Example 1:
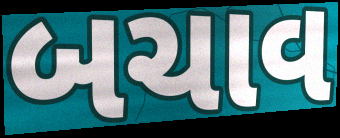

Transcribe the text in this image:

બચાવ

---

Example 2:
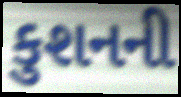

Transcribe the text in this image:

કુશનની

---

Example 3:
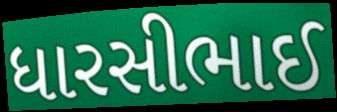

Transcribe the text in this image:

ધારસીભાઈ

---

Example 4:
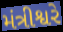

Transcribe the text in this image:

મંત્રીશ્વરે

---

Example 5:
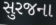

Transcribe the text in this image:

સુરજના